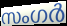
സംഗർ